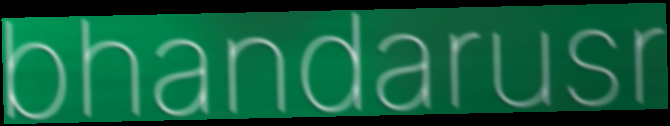
bhandarusr